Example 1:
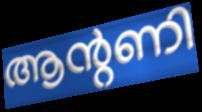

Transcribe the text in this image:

ആന്റണി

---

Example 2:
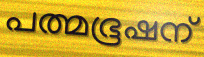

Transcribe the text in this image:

പത്മഭൂഷന്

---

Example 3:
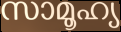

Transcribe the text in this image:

സാമൂഹ്യ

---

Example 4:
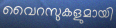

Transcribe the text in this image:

വൈറസുകളുമായി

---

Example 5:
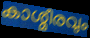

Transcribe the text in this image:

കാശ്മീരവും